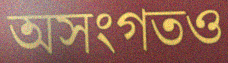
অসংগতও